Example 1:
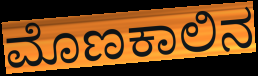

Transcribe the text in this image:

ಮೊಣಕಾಲಿನ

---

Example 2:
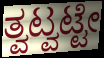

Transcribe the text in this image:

ತ್ವಟ್ವಟ್ಟೇ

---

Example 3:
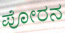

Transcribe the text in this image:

ಪೋರನ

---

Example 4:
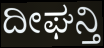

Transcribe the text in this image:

ದೀಘನ್ತಿ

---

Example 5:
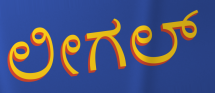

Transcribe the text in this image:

ಲೀಗಲ್